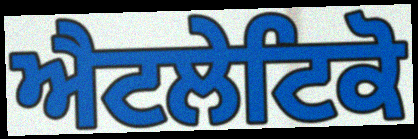
ਐਟਲੇਟਿਕੋ